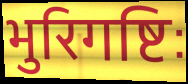
भुरिगष्टिः